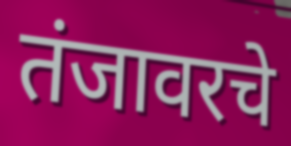
तंजावरचे